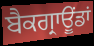
ਬੈਕਗ੍ਰਾਊਂਡਾਂ